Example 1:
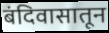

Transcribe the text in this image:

बंदिवासातून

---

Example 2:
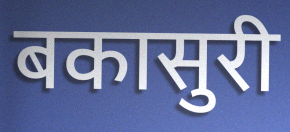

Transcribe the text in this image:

बकासुरी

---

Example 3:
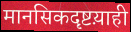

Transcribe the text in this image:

मानसिकदृष्टय़ाही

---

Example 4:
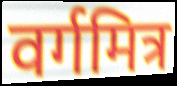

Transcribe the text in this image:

वर्गमित्र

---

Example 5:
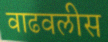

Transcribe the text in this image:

वाढवलीस